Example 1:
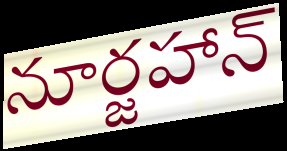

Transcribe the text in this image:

నూర్జహాన్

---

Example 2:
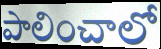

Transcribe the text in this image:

పాలించాలో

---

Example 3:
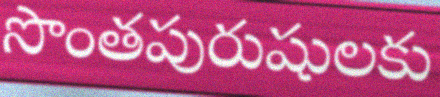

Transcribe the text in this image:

సొంతపురుషులకు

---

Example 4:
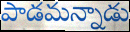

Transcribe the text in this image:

పాడమన్నాడు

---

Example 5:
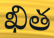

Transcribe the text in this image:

ఖిత